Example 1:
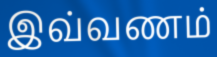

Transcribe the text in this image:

இவ்வணம்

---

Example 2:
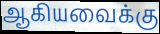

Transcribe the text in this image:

ஆகியவைக்கு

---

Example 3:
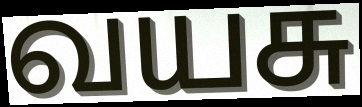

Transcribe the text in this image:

வயசு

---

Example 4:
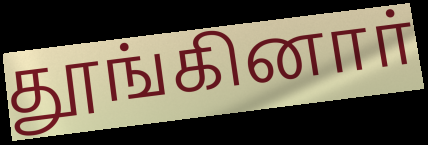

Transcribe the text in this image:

தூங்கினார்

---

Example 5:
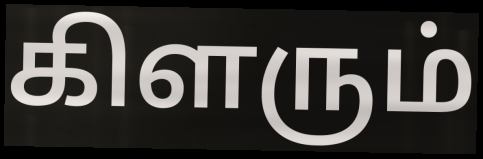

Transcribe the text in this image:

கிளரும்